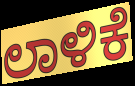
ಲಾಳಿಕೆ